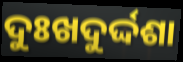
ଦୁଃଖଦୁର୍ଦ୍ଦଶା